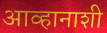
आव्हानाशी